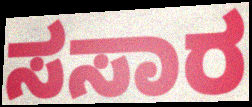
ಸಸಾರ